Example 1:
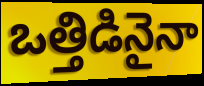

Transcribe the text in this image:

ఒత్తిడినైనా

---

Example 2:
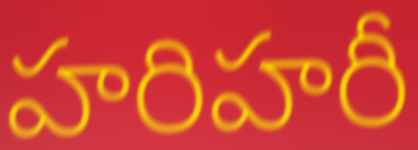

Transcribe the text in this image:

హరిహరీ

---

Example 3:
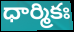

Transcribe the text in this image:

ధార్మికః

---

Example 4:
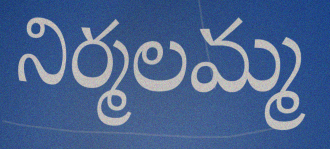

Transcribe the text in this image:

నిర్మలమ్మ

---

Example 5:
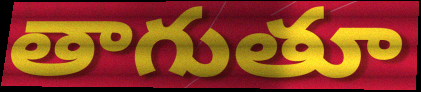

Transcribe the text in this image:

తాగుతూ